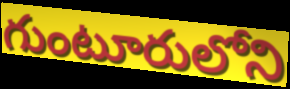
గుంటూరులోని